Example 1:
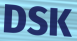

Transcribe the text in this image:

DSK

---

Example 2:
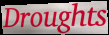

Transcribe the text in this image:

Droughts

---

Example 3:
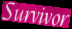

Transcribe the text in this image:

Survivor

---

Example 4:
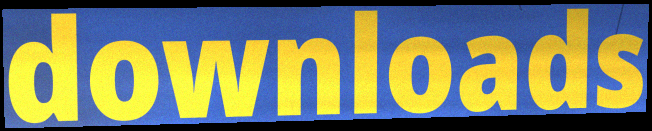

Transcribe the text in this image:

downloads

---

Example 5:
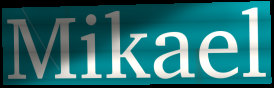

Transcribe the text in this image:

Mikael